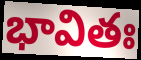
భావితః